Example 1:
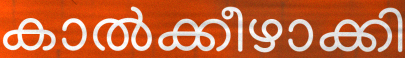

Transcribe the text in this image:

കാൽക്കീഴാക്കി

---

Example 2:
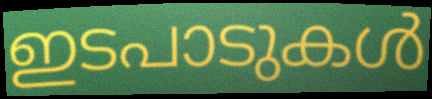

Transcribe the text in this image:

ഇടപാടുകൾ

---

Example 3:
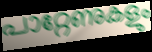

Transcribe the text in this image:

പാറ്റേണുകളും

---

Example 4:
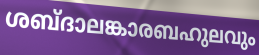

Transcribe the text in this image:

ശബ്ദാലങ്കാരബഹുലവും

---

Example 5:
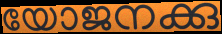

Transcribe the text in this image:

യോജനക്കു